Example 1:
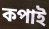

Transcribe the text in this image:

কপাই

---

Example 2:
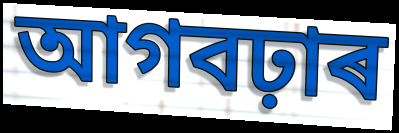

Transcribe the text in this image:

আগবঢ়াৰ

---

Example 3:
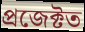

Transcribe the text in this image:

প্ৰজেক্টত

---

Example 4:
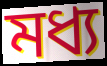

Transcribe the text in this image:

মধ্য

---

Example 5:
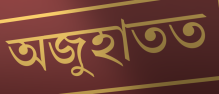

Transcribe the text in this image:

অজুহাতত